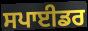
ਸਪਾਈਡਰ